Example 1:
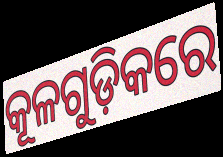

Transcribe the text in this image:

କୂଳଗୁଡ଼ିକରେ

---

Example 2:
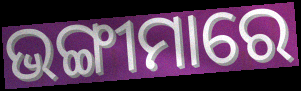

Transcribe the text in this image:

ଭଙ୍ଗୀମାରେ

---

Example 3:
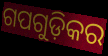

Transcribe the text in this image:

ଗପଗୁଡ଼ିକର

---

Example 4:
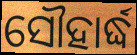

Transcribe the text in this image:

ସୌହାର୍ଦ୍ଧ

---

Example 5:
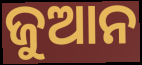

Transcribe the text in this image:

ଜୁଆନ